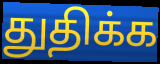
துதிக்க